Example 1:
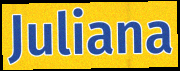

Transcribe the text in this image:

Juliana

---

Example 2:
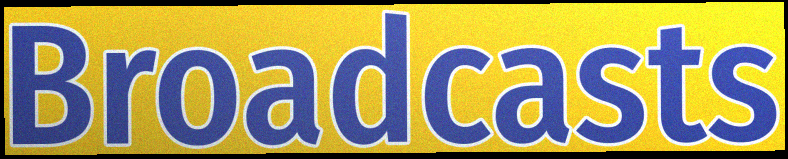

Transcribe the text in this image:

Broadcasts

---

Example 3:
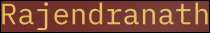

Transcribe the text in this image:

Rajendranath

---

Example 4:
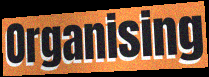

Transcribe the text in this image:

Organising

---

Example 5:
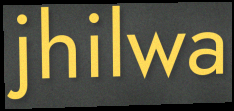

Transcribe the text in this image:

jhilwa